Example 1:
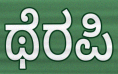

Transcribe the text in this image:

ಥೆರಪಿ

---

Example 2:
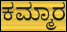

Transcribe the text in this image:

ಕಮ್ಮಾರ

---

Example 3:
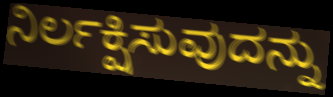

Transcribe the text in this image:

ನಿರ್ಲಕ್ಷಿಸುವುದನ್ನು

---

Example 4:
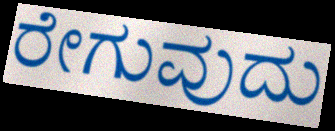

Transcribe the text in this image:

ರೇಗುವುದು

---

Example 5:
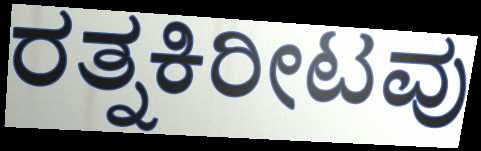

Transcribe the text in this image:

ರತ್ನಕಿರೀಟವು